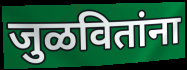
जुळवितांना